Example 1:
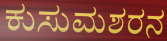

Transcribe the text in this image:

ಕುಸುಮಶರನ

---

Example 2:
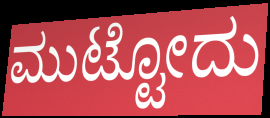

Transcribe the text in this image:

ಮುಟ್ಟೋದು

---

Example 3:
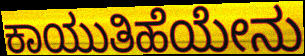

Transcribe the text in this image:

ಕಾಯುತಿಹೆಯೇನು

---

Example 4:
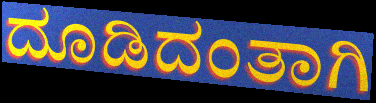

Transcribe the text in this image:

ದೂಡಿದಂತಾಗಿ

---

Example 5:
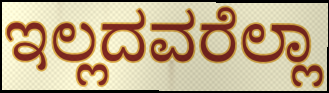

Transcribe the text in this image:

ಇಲ್ಲದವರೆಲ್ಲಾ